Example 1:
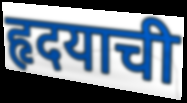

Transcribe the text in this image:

हृदयाची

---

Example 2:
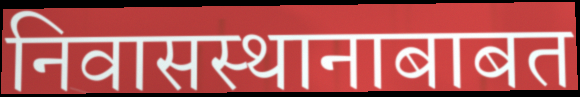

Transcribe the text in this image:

निवासस्थानाबाबत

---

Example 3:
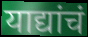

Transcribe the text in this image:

याद्यांचं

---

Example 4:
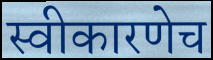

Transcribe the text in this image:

स्वीकारणेच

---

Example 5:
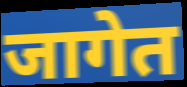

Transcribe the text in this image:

जागेत